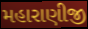
મહારાણીજી